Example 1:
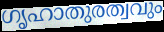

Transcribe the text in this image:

ഗൃഹാതുരത്വവും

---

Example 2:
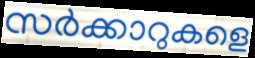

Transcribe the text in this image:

സർക്കാറുകളെ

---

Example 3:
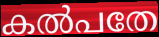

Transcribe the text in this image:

കൽപതേ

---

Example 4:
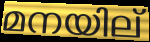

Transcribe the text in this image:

മനയില്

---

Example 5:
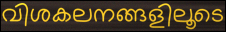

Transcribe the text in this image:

വിശകലനങ്ങളിലൂടെ